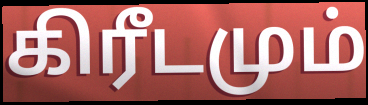
கிரீடமும்